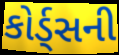
કોર્ડ્સની